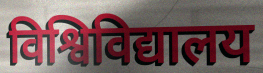
विश्विविद्यालय